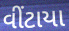
વીંટાયા